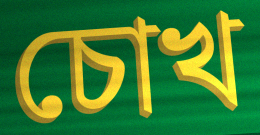
চোখ